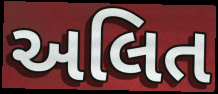
અલિત